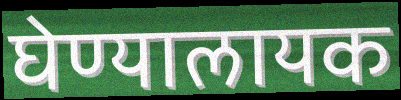
घेण्यालायक